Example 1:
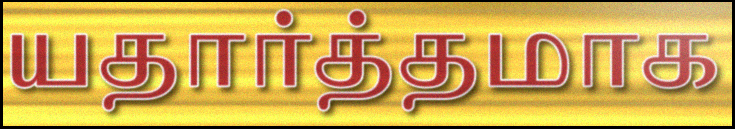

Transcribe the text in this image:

யதார்த்தமாக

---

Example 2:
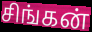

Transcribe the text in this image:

சிங்கன்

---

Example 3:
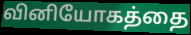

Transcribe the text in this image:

வினியோகத்தை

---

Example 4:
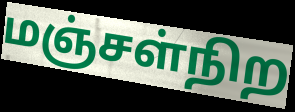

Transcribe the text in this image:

மஞ்சள்நிற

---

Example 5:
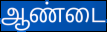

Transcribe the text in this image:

ஆண்டை